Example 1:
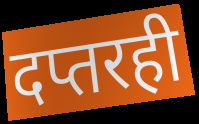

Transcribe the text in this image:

दप्तरही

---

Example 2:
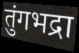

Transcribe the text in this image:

तुंगभद्रा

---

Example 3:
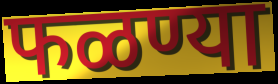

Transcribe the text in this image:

फळण्या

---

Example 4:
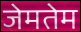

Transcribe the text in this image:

जेमतेम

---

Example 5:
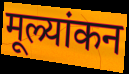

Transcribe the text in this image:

मूल्यांकन